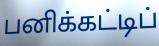
பனிக்கட்டிப்